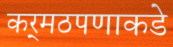
कर्मठपणाकडे